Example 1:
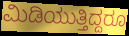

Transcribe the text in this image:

ಮಿಡಿಯುತ್ತಿದ್ದರೂ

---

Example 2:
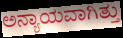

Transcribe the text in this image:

ಅನ್ಯಾಯವಾಗಿತ್ತು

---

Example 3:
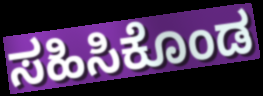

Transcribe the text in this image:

ಸಹಿಸಿಕೊಂಡ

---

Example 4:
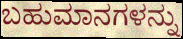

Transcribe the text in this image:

ಬಹುಮಾನಗಳನ್ನು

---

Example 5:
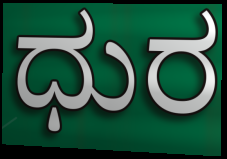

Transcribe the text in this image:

ಧುರ